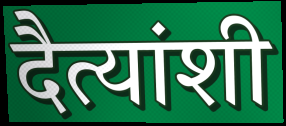
दैत्यांशी